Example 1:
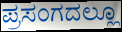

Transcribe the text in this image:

ಪ್ರಸಂಗದಲ್ಲೂ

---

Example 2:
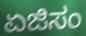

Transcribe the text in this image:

ಏಜಿಸಂ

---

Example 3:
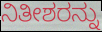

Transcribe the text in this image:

ನಿತೀಶರನ್ನು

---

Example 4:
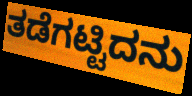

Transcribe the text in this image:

ತಡೆಗಟ್ಟಿದನು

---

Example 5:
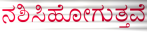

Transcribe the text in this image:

ನಶಿಸಿಹೋಗುತ್ತವೆ